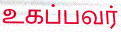
உகப்பவர்